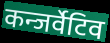
कन्जर्वेटिव